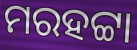
ମରହଟ୍ଟା